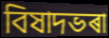
বিষাদভৰা